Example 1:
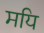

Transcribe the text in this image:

ਸਧਿ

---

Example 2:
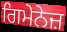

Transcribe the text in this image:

ਗਿਮੇਨੇਜ਼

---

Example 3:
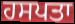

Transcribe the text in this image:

ਹਸਪਤਾ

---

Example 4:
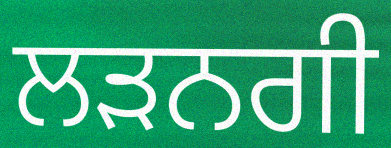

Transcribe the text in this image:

ਲੜਨਗੀ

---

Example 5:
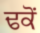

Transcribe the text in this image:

ਢਕੋਂ